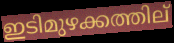
ഇടിമുഴക്കത്തില്